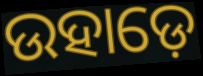
ଉହାଡ଼େ